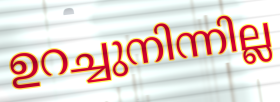
ഉറച്ചുനിന്നില്ല